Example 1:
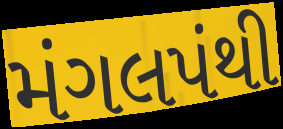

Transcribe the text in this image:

મંગલપંથી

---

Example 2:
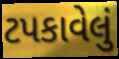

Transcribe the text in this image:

ટપકાવેલું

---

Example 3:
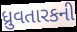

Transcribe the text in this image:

ધ્રુવતારકની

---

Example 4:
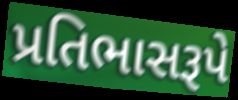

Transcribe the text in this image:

પ્રતિભાસરૂપે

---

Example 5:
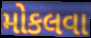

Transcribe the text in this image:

મોકલવા